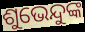
ଶୁଭେନ୍ଦୁଙ୍କ